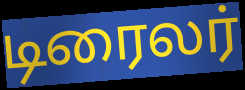
டிரைலர்